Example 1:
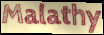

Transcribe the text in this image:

Malathy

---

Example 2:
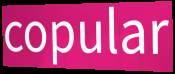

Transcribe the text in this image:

copular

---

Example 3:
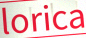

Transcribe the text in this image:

lorica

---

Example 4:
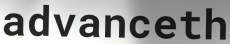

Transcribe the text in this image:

advanceth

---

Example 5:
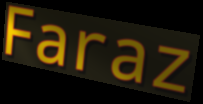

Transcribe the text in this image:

Faraz